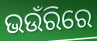
ଭଉଁରିରେ